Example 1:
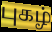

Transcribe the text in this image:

புகழ்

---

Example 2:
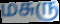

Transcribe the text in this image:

மசுரு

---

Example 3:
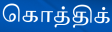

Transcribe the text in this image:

கொத்திக்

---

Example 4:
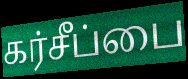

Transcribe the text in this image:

கர்சீப்பை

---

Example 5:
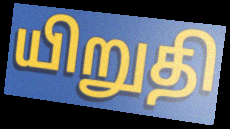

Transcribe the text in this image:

யிறுதி